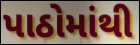
પાઠોમાંથી